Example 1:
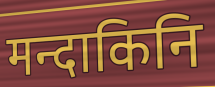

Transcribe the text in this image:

मन्दाकिनि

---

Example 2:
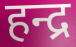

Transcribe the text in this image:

हन्द्र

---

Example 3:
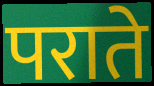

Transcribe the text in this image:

पराते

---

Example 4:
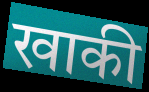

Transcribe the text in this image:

खाकी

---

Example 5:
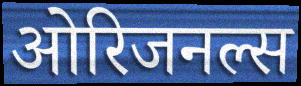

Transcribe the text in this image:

ओरिजनल्स